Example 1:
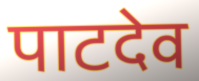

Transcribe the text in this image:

पाटदेव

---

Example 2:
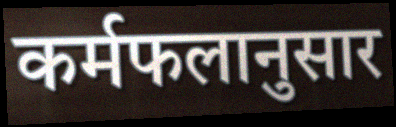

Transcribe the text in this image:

कर्मफलानुसार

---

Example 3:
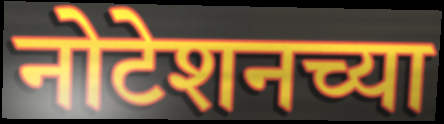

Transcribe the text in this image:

नोटेशनच्या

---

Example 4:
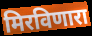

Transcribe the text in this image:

मिरविणारा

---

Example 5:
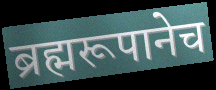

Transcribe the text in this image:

ब्रह्मरूपानेच